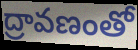
ద్రావణంతో